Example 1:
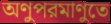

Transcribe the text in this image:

অণুপরমাণুতে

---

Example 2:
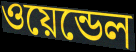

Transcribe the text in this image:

ওয়েন্ডেল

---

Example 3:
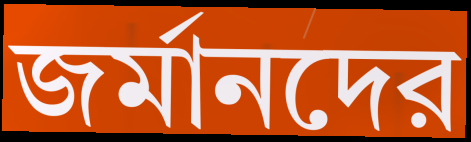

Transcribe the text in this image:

জর্মানদের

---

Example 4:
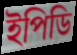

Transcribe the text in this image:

ইপিডি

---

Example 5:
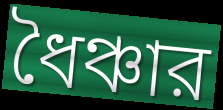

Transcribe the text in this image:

ধৈঞ্চার